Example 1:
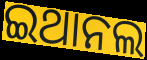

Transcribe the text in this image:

ଇଥାନଲ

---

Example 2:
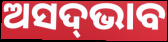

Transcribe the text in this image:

ଅସଦ୍‌ଭାବ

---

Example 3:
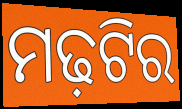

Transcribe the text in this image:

ମଢ଼ଟିର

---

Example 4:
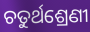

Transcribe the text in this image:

ଚତୁର୍ଥଶ୍ରେଣୀ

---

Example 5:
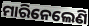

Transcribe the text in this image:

ମାରିନେଲେଣି